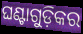
ଘଣ୍ଟାଗୁଡ଼ିକର